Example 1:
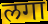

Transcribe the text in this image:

लगा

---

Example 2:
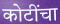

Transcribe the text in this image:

कोटींचा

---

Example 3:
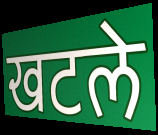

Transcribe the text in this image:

खटले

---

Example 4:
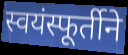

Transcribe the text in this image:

स्वयंस्फूर्तीने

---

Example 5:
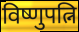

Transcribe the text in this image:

विष्णुपत्नि